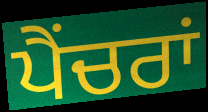
ਪੈਂਚਰਾਂ